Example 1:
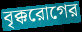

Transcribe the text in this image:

বৃক্করোগের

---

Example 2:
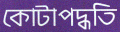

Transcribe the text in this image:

কোটাপদ্ধতি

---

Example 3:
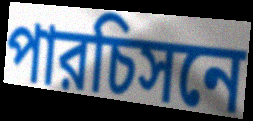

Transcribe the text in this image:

পারচিসনে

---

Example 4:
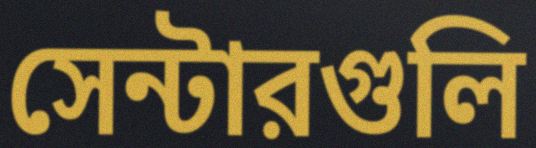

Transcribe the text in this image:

সেন্টারগুলি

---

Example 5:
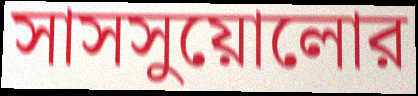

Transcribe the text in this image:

সাসসুয়োলোর